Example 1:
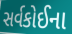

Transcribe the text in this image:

સર્વકોઈના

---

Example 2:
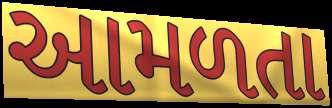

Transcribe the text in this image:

આમળતા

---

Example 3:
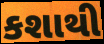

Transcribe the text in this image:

કશાથી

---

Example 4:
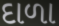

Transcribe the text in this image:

દાળા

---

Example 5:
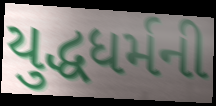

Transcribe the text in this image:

યુદ્ધધર્મની